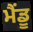
ਮੈਂਡੂ